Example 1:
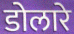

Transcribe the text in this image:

डोलारे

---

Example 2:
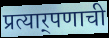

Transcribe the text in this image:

प्रत्यार्पणाची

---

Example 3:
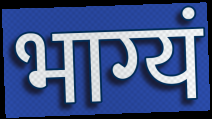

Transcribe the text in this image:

भाग्यं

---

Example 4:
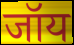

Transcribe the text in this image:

जॉय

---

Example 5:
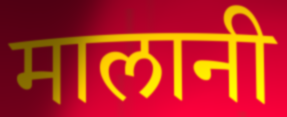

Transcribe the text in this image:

मालानी